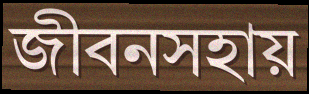
জীবনসহায়